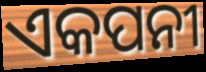
ଏକପନୀ